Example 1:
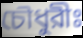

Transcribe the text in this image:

চৌধুরীঃ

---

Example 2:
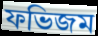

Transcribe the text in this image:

ফভিজম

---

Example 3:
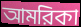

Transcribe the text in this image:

আমরিকা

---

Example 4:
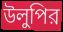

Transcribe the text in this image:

উলুপির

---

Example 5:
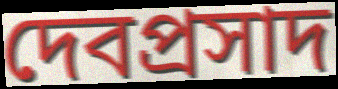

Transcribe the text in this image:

দেবপ্রসাদ